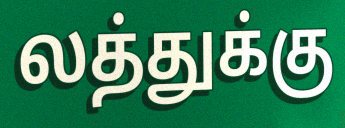
லத்துக்கு